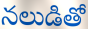
నలుడితో